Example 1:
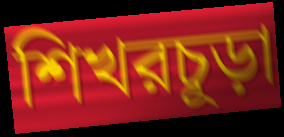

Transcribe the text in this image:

শিখরচূড়া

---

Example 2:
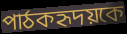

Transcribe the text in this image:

পাঠকহৃদয়কে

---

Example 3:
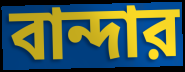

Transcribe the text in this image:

বান্দার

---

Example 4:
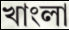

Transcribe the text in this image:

খাংলা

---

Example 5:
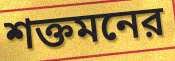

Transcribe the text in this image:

শক্তমনের